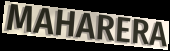
MAHARERA